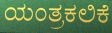
ಯಂತ್ರಕಲಿಕೆ